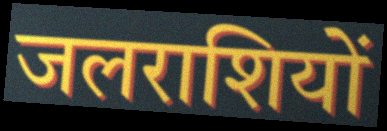
जलराशियों